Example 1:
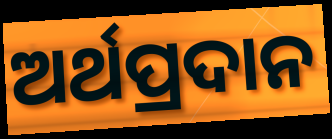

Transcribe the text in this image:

ଅର୍ଥପ୍ରଦାନ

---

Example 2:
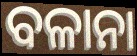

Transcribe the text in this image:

ବଳାନା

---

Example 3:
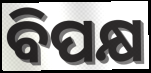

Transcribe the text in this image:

ବିପକ୍ଷ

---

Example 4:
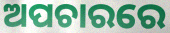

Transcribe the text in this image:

ଅପଚାରରେ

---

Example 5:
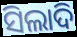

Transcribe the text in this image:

ସିଲାଦି